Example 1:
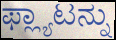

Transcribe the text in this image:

ಫ್ಲ್ಯಾಟನ್ನು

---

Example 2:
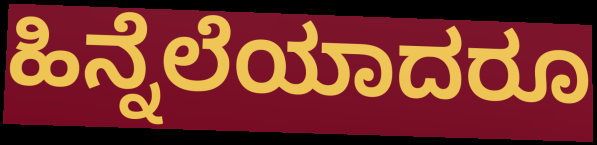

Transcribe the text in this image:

ಹಿನ್ನೆಲೆಯಾದರೂ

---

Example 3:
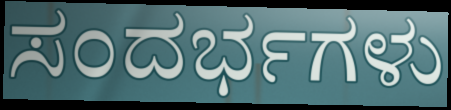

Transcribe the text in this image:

ಸಂದರ್ಭಗಳು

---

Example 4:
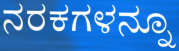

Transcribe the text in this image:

ನರಕಗಳನ್ನೂ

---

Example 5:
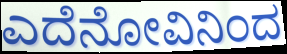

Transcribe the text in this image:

ಎದೆನೋವಿನಿಂದ